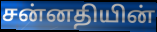
சன்னதியின்